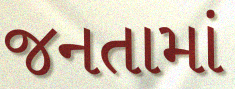
જનતામાં